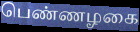
பெண்ணழகை